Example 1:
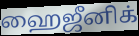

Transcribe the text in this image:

ஹைஜீனிக்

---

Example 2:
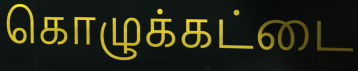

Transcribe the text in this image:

கொழுக்கட்டை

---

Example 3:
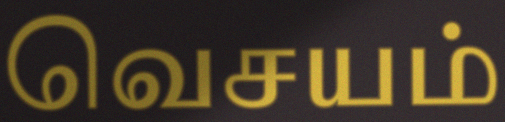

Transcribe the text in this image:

வெசயம்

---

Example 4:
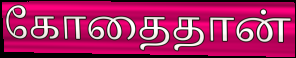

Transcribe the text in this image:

கோதைதான்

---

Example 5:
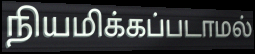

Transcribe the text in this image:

நியமிக்கப்படாமல்